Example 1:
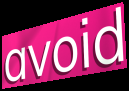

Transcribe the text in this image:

avoid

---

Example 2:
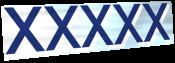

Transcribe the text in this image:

xxxxx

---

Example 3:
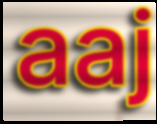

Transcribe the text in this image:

aaj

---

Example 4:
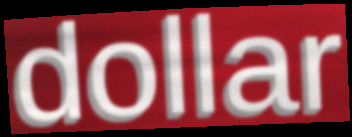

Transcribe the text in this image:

dollar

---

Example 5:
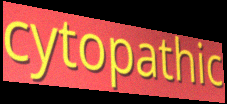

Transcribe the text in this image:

cytopathic